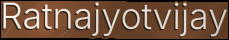
Ratnajyotvijay